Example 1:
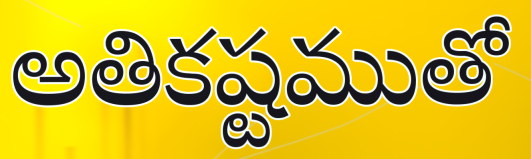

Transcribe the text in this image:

అతికష్టముతో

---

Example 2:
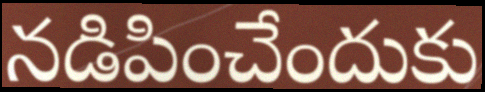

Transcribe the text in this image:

నడిపించేందుకు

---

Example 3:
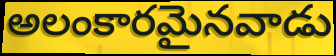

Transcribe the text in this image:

అలంకారమైనవాడు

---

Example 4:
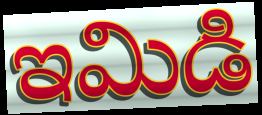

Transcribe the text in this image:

ఇమిడి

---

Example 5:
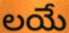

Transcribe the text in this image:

లయే